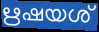
ഋഷയശ്